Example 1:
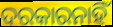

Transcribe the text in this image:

ଦରକାରନାହିଁ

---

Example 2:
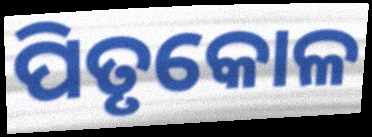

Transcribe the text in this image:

ପିତୃକୋଳ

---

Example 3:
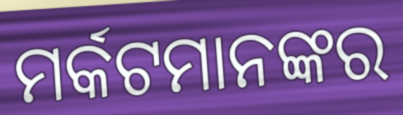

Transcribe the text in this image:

ମର୍କଟମାନଙ୍କର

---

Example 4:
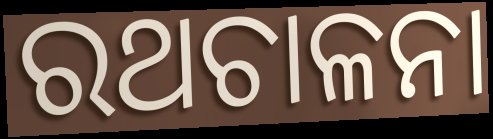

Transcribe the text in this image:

ରଥଚାଳନା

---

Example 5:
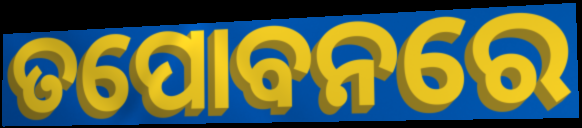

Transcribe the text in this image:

ତପୋବନରେ